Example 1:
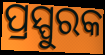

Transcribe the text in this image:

ପ୍ରସ୍ପୁରକ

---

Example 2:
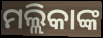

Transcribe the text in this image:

ମଲ୍ଲିକାଙ୍କ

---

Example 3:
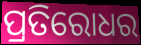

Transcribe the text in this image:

ପ୍ରତିରୋଧର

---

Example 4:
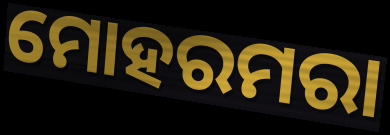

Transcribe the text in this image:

ମୋହରମରା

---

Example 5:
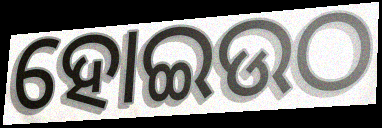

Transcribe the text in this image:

ହୋଇଉଠ